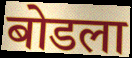
बोडला